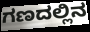
ಗಣದಲ್ಲಿನ